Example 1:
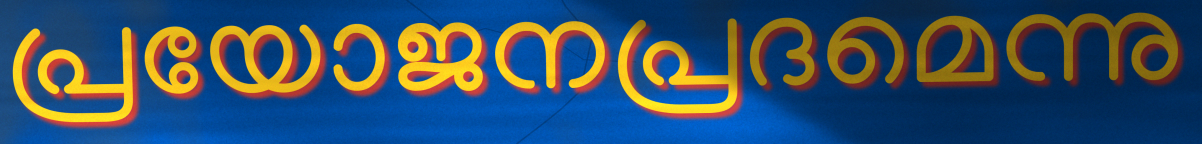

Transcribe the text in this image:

പ്രയോജനപ്രദമെന്നു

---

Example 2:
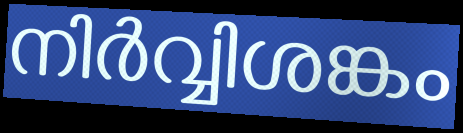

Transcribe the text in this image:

നിർവ്വിശങ്കം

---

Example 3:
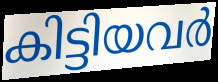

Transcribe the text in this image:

കിട്ടിയവർ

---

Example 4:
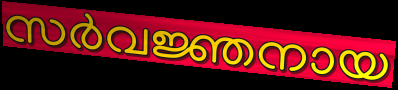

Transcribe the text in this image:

സർവജ്ഞനായ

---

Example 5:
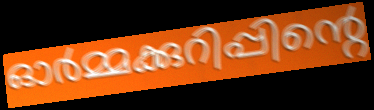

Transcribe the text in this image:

ഓർമ്മക്കുറിപ്പിന്റെ